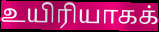
உயிரியாகக்